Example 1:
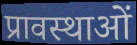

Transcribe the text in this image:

प्रावस्थाओं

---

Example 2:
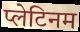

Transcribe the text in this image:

प्लेटिनम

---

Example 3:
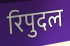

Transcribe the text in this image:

रिपुदल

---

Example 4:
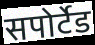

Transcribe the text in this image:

सपोर्टेड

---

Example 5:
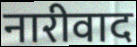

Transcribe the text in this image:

नारीवाद